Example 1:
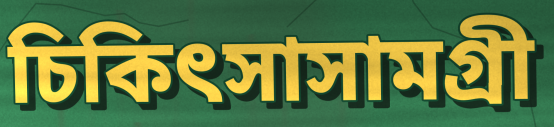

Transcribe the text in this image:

চিকিৎসাসামগ্রী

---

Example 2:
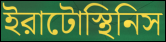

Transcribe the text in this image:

ইরাটোস্থিনিস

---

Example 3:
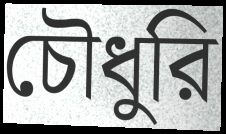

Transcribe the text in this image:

চৌধুরি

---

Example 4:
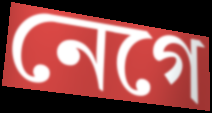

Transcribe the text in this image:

নেগে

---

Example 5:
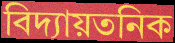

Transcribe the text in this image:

বিদ্যায়তনিক